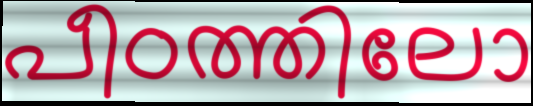
പീഠത്തിലോ